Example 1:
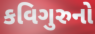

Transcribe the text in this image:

કવિગુરુનો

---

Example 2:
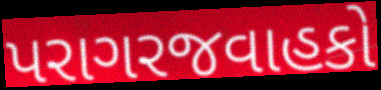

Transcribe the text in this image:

પરાગરજવાહકો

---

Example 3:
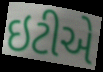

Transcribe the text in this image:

ઇટીએ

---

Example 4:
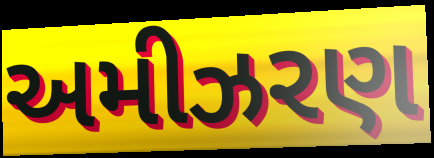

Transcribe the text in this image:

અમીઝરણ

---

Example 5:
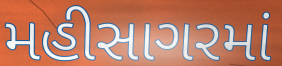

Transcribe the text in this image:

મહીસાગરમાં